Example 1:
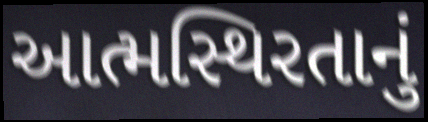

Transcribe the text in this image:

આત્મસ્થિરતાનું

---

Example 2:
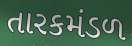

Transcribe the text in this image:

તારકમંડળ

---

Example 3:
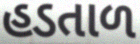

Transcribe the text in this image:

હડતાળ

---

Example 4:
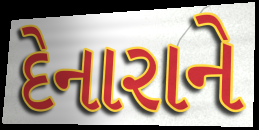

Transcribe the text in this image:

દેનારાને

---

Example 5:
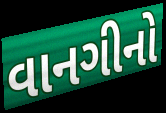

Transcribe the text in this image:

વાનગીનો